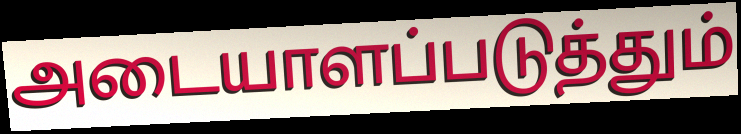
அடையாளப்படுத்தும்